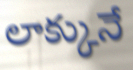
లాక్కునే